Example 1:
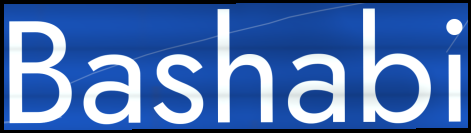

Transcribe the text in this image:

Bashabi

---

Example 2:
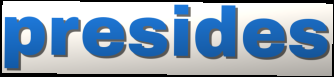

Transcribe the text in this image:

presides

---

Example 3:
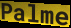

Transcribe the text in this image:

Palme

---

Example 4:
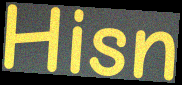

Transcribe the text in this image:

Hisn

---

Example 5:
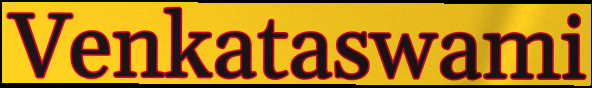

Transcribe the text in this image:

Venkataswami